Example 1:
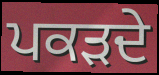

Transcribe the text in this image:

ਪਕੜਦੇ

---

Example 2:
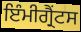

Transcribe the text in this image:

ਇੰਮੀਗ੍ਰੈਂਟਸ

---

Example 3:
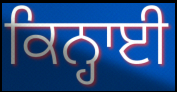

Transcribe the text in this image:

ਕਿਨ੍ਹਾਈ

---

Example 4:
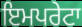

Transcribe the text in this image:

ਇਮਪਰੇਟਾ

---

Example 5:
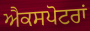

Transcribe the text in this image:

ਐਕਸਪੋਟਰਾਂ